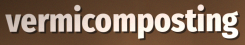
vermicomposting